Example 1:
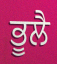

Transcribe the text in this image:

ਭੂਲੈ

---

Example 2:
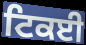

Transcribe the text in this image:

ਟਿਕਈ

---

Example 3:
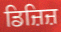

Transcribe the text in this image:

ਡਿਜ਼ਿਜ਼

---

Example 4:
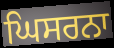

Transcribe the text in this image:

ਘਿਸਰਨਾ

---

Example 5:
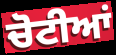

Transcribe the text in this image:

ਚੋਟੀਆਂ